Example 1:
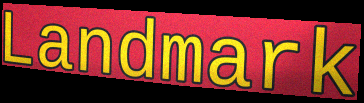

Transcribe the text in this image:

Landmark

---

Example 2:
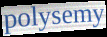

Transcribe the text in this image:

polysemy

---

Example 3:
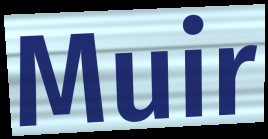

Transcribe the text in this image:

Muir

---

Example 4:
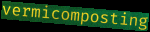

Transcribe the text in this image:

vermicomposting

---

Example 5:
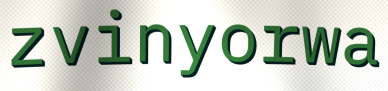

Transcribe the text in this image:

zvinyorwa